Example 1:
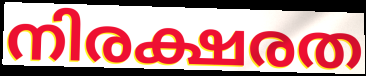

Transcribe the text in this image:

നിരക്ഷരത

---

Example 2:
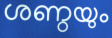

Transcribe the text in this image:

ശണ്ഠയും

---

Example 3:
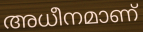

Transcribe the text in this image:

അധീനമാണ്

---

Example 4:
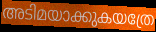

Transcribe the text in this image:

അടിമയാക്കുകയത്രേ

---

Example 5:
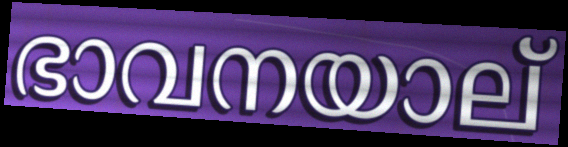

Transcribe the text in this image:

ഭാവനയാല്